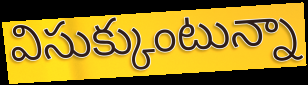
విసుక్కుంటున్నా